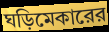
ঘড়িমেকারের